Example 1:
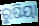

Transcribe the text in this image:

ରୁଷିୟା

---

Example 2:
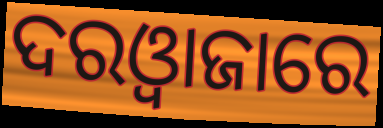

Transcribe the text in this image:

ଦରଓ୍ୱାଜାରେ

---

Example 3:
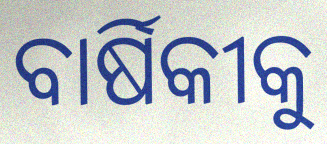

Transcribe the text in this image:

ବାର୍ଷିକୀକୁ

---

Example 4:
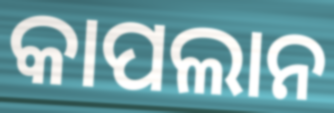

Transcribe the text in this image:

କାପଲାନ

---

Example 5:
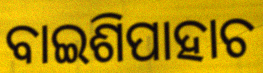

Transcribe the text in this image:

ବାଇଶିପାହାଚ